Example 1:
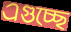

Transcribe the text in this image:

এগুচ্ছে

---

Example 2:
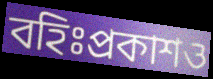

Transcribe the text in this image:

বহিঃপ্রকাশও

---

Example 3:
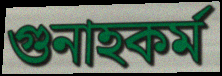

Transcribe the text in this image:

গুনাহকর্ম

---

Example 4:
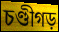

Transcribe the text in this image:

চণ্ডীগড়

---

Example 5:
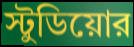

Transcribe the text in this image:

স্টুডিয়োর